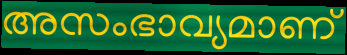
അസംഭാവ്യമാണ്